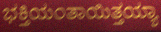
ಭಕ್ತಿಯಂತಾಯಿತ್ತಯ್ಯಾ